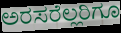
ಅರಸರೆಲ್ಲರಿಗೂ